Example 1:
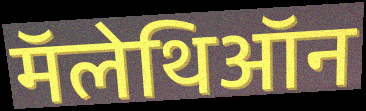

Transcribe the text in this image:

मॅलेथिऑन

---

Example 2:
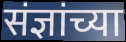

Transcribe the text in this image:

संज्ञांच्या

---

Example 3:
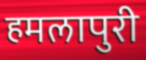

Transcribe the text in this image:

हमलापुरी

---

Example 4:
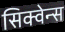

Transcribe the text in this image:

सिक्वेन्स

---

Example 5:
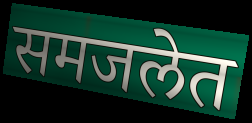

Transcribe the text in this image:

समजलेत